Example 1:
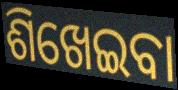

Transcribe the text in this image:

ଶିଖେଇବା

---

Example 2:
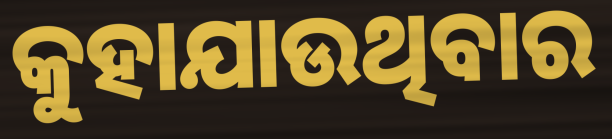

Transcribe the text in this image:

କୁହାଯାଉଥିବାର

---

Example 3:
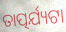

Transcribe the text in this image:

ତାତ୍ପର୍ଯ୍ୟଟା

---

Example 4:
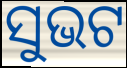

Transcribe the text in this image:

ସୁଭଟ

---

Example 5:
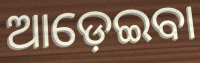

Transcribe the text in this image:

ଆଡ଼େଇବା